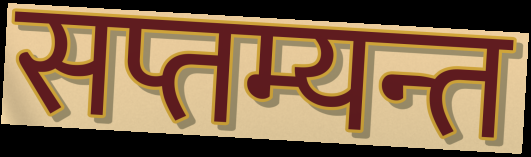
सप्तम्यन्त